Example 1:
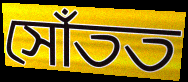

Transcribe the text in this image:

সোঁতত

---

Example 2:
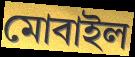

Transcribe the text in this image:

মোবাইল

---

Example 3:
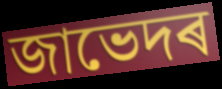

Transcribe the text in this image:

জাভেদৰ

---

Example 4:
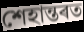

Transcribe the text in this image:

শেহান্তৰত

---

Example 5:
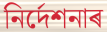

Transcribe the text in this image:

নিৰ্দেশনাৰ